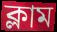
ক্লাম